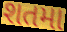
શતમા